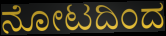
ನೋಟದಿಂದ